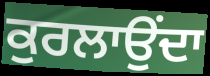
ਕੁਰਲਾਉਂਦਾ